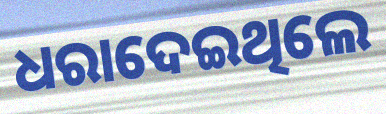
ଧରାଦେଇଥିଲେ